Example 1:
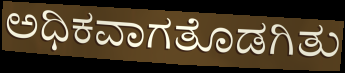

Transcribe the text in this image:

ಅಧಿಕವಾಗತೊಡಗಿತು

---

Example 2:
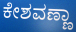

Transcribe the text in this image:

ಕೇಶವಣ್ಣಾ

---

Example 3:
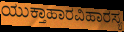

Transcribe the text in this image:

ಯುಕ್ತಾಹಾರವಿಹಾರಸ್ಯ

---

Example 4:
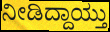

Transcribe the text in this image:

ನೀಡಿದ್ದಾಯ್ತು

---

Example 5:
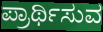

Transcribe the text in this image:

ಪ್ರಾರ್ಥಿಸುವ